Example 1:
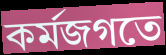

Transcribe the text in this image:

কর্মজগতে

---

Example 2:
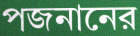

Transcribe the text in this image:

পজনানের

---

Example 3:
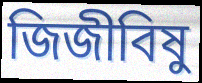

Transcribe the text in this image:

জিজীবিষু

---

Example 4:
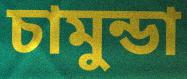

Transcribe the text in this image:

চামুন্ডা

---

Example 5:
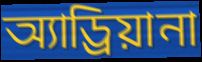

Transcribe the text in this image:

অ্যাড্রিয়ানা